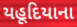
યહૂદિયાના